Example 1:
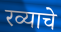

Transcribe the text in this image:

रव्याचे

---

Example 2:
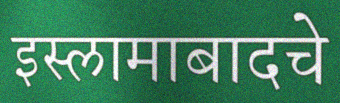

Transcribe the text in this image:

इस्लामाबादचे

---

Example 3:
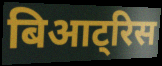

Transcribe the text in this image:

बिआट्रिस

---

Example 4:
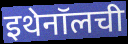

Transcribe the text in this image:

इथेनॉलची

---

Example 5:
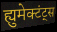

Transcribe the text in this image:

ह्युमेक्टंट्स